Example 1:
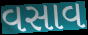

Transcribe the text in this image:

વસાવ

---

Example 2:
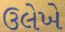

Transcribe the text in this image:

ઉલેખે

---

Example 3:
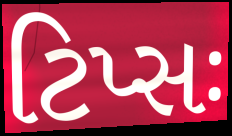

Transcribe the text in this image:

ટિપ્સઃ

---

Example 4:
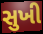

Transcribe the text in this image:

સુખી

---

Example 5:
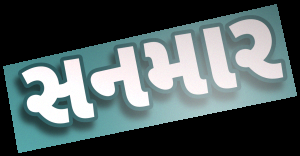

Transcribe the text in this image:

સનમાર